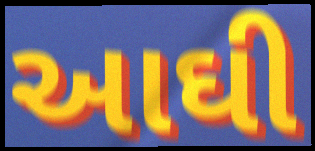
આઘી